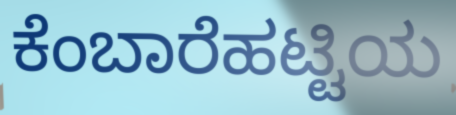
ಕೆಂಬಾರೆಹಟ್ಟಿಯ